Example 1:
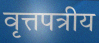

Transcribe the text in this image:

वृत्तपत्रीय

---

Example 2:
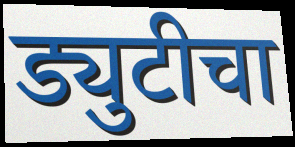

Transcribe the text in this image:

ड्युटीचा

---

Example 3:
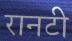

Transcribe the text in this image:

रानटी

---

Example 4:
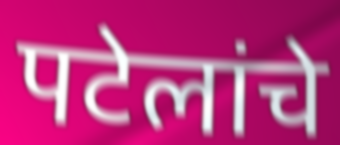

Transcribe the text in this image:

पटेलांचे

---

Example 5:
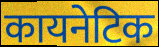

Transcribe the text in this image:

कायनेटिक